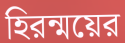
হিরন্ময়ের